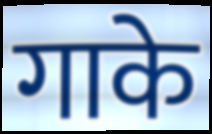
गाके